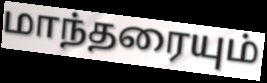
மாந்தரையும்